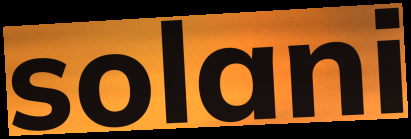
solani